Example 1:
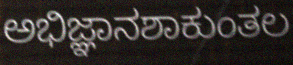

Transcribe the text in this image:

ಅಭಿಜ್ಞಾನಶಾಕುಂತಲ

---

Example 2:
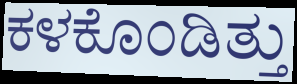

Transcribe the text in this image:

ಕಳಕೊಂಡಿತ್ತು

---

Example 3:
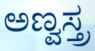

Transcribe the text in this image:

ಅಣ್ವಸ್ತ್ರ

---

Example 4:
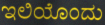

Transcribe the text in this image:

ಇಲಿಯೊಂದು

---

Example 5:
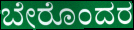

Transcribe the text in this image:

ಬೇರೊಂದರ